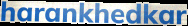
harankhedkar